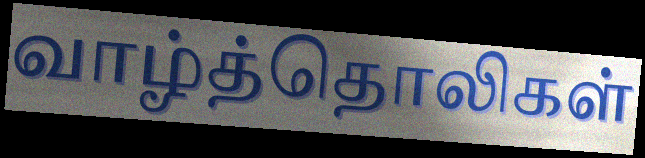
வாழ்த்தொலிகள்